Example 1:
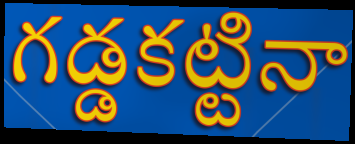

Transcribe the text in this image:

గడ్డకట్టినా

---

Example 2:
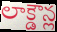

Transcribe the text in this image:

లాక్డౌన్ల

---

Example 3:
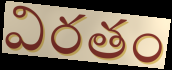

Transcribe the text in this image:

విరతం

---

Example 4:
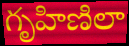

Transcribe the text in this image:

గృహిణిలా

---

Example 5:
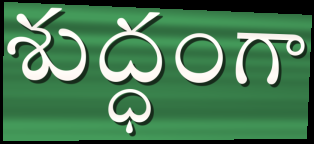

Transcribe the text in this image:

శుద్ధంగా